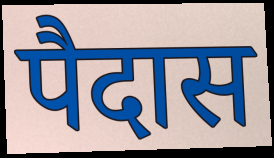
पैदास